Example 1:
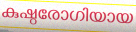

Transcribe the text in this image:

കുഷ്ഠരോഗിയായ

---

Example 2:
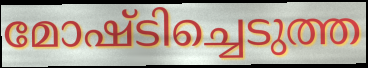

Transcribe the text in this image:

മോഷ്ടിച്ചെടുത്ത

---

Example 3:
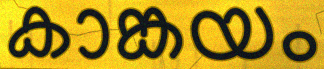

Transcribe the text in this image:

കാങ്കയം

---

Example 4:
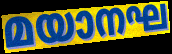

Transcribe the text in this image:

മയാനഘ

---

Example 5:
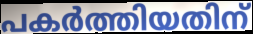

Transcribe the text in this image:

പകർത്തിയതിന്